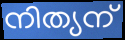
നിത്യന്